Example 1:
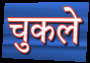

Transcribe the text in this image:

चुकले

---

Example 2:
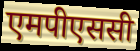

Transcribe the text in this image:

एमपीएससी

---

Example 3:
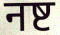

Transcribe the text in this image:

नष्ट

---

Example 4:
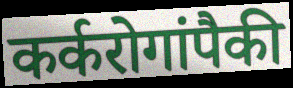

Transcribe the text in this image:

कर्करोगांपैकी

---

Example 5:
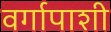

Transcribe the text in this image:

वर्गापाशी